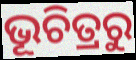
ଭୂଚିତ୍ରରୁ